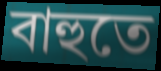
বাহুতে